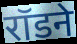
रॉडने